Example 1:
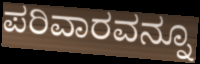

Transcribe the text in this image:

ಪರಿವಾರವನ್ನೂ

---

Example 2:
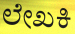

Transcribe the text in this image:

ಲೇಖಕಿ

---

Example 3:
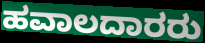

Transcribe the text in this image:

ಹವಾಲದಾರರು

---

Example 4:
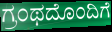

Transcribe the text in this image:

ಗ್ರಂಥದೊಂದಿಗೆ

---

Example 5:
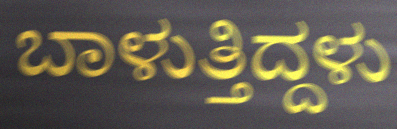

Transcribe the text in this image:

ಬಾಳುತ್ತಿದ್ದಳು